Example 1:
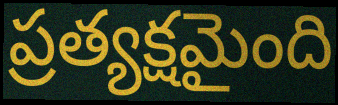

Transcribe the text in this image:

ప్రత్యక్షమైంది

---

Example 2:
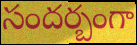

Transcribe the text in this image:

సందర్బంగా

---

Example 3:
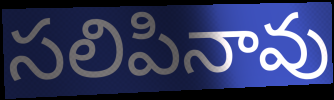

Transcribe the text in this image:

సలిపినావు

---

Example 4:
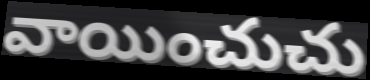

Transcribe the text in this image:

వాయించుచు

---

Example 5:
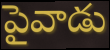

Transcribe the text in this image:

పైవాడు